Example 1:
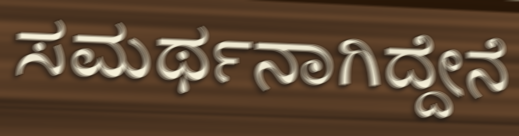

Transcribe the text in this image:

ಸಮರ್ಥನಾಗಿದ್ದೇನೆ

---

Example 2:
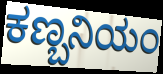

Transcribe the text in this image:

ಕಣ್ಬನಿಯಂ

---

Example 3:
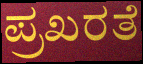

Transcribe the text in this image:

ಪ್ರಖರತೆ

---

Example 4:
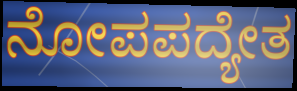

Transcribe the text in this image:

ನೋಪಪದ್ಯೇತ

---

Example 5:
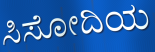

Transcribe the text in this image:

ಸಿಸೋದಿಯ